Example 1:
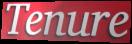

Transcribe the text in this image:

Tenure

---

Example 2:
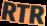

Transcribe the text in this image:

RTR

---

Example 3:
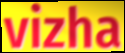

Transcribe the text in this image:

vizha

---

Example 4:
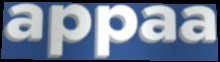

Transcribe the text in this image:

appaa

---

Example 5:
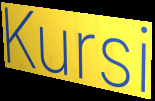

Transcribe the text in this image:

Kursi